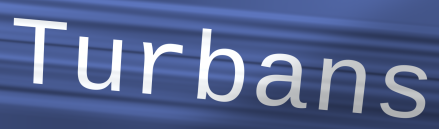
Turbans